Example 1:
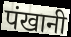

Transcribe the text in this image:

पंखानी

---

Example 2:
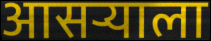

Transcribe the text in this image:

आसऱ्याला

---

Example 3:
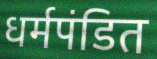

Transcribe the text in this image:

धर्मपंडित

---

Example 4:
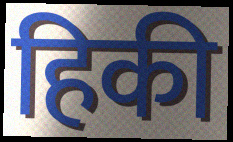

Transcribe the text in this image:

हिकी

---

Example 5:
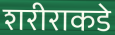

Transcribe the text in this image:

शरीराकडे